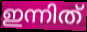
ഇന്നിത്